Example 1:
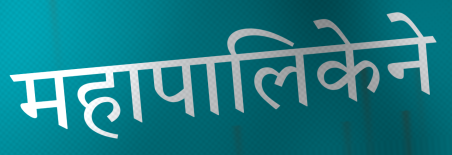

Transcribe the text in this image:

महापालिकेने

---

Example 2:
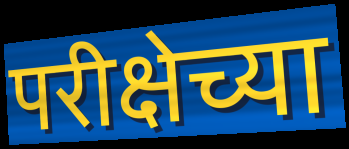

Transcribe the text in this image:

परीक्षेच्या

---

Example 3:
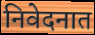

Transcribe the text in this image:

निवेदनात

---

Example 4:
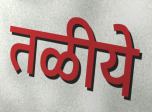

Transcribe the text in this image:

तळीये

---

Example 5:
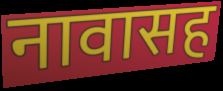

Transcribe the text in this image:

नावासह